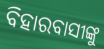
ବିହାରବାସୀଙ୍କୁ